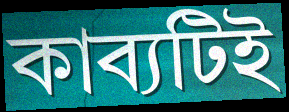
কাব্যটিই